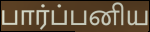
பார்ப்பனிய